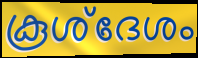
കൂശ്ദേശം